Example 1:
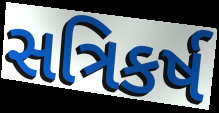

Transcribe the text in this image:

સત્રિકર્ષ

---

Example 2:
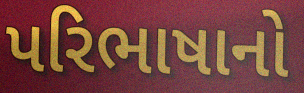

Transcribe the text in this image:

પરિભાષાનો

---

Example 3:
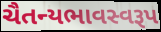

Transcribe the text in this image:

ચૈતન્યભાવસ્વરૂપ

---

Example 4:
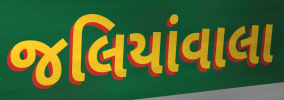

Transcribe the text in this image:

જલિયાંવાલા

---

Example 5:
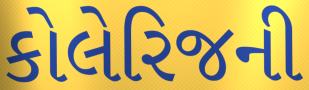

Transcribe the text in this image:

કોલેરિજની